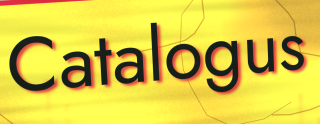
Catalogus